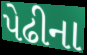
પેઢીના